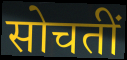
सोचतीं